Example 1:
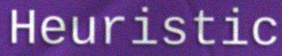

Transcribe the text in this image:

Heuristic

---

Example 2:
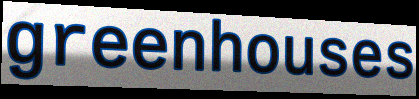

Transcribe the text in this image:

greenhouses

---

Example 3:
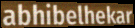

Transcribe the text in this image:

abhibelhekar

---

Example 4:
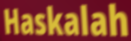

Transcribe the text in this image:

Haskalah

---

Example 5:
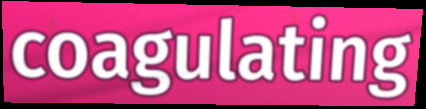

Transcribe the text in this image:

coagulating